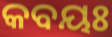
କବୟଃ